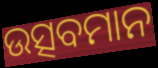
ଉତ୍ସବମାନ